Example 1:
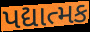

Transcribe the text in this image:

પદ્યાત્મક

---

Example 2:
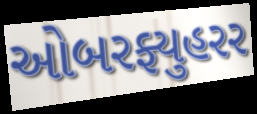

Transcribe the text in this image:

ઓબરફ્યુહરર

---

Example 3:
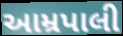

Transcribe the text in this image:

આમ્રપાલી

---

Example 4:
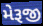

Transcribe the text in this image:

મેરૂજી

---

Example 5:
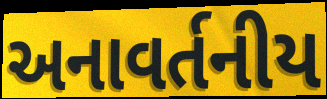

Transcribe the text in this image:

અનાવર્તનીય